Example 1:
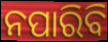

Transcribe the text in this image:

ନପାରିବି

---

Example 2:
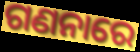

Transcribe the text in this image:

ଗଣନାରେ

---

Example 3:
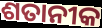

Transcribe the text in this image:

ଶତାନୀକ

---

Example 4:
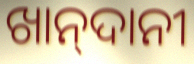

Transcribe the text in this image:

ଖାନ୍‍ଦାନୀ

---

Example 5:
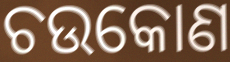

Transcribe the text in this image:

ଚଉକୋଣ